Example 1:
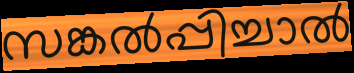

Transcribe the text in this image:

സങ്കൽപ്പിച്ചാൽ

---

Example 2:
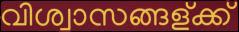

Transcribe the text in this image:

വിശ്വാസങ്ങള്ക്ക്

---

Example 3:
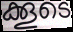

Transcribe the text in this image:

ക്കൂടെ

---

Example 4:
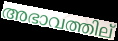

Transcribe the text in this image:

അഭാവത്തില്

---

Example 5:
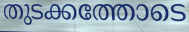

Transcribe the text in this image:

തുടക്കത്തോടെ